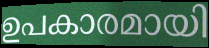
ഉപകാരമായി